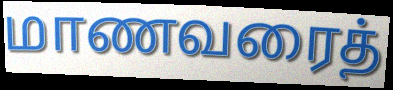
மாணவரைத்